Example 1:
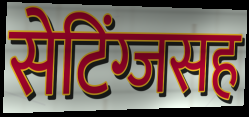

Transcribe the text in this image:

सेटिंग्जसह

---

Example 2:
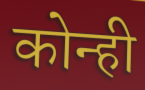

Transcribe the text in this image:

कोन्ही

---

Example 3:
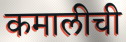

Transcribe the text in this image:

कमालीची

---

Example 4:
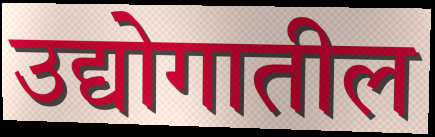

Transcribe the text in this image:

उद्योगातील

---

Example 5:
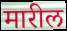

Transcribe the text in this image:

मारील